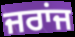
ਜਰਾਂਜ